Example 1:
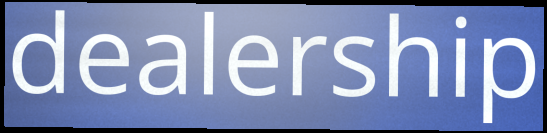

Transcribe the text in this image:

dealership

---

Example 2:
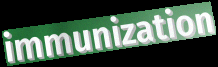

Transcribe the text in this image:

immunization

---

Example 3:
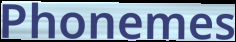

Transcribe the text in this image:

Phonemes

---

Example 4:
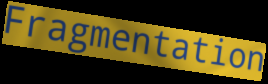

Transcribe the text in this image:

Fragmentation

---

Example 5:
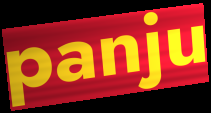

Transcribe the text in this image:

panju